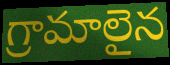
గ్రామాలైన